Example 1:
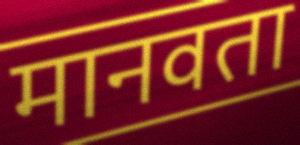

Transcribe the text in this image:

मानवता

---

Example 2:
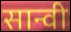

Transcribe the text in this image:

सान्वी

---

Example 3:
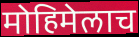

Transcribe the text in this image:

मोहिमेलाच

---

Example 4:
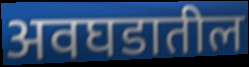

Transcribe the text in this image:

अवघडातील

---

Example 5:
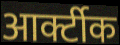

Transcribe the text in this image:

आर्क्टीक